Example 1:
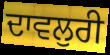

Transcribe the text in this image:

ਦਾਵਲੁਰੀ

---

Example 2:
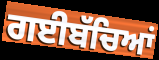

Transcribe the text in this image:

ਗਈਬੱਚਿਆਂ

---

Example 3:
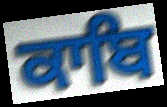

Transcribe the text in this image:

ਕਾਬਿ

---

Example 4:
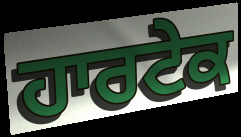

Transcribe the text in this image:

ਹਾਰਟੇਕ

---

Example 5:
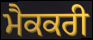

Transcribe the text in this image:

ਮੈਕਕਰੀ